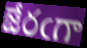
జేరఁగా